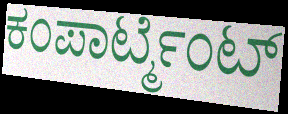
ಕಂಪಾರ್ಟ್ಮೆಂಟ್